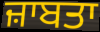
ਜ਼ਾਬਤਾ